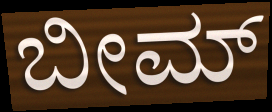
ಬೀಮ್